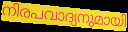
നിരപവാദ്യനുമായി